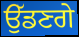
ਉੱਡਣਗੇ